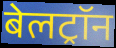
बेलट्रॉन